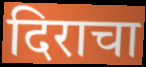
दिराचा